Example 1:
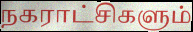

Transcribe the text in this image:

நகராட்சிகளும்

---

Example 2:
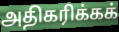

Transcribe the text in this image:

அதிகரிக்கக்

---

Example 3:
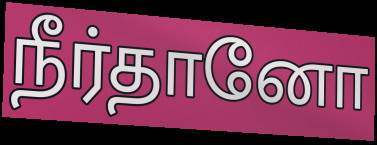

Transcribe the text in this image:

நீர்தானோ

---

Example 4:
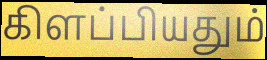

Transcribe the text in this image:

கிளப்பியதும்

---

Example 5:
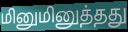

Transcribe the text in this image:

மினுமினுத்தது